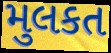
મુલકત